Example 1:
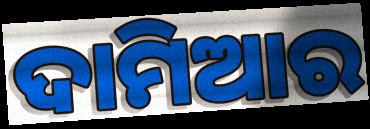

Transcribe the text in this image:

ଦାମିଆର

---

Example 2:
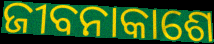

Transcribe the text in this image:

ଜୀବନାକାଶେ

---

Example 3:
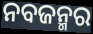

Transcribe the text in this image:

ନବଜନ୍ମର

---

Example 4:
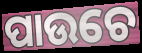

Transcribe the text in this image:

ପାଉଚେ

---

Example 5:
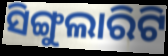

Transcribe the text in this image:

ସିଙ୍ଗୁଲାରିଟି